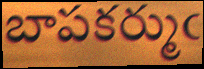
బాపకర్ముఁ